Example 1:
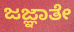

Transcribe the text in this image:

ಜಜ್ಞಾತೇ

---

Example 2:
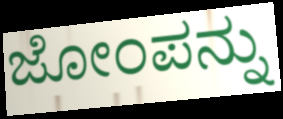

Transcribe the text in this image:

ಜೋಂಪನ್ನು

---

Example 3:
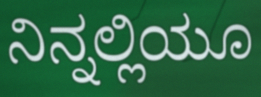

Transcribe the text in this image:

ನಿನ್ನಲ್ಲಿಯೂ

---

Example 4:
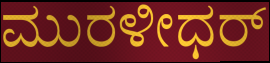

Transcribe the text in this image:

ಮುರಳೀಧರ್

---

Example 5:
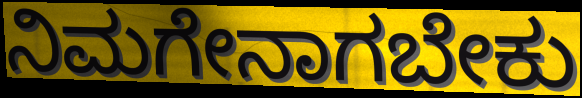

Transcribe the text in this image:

ನಿಮಗೇನಾಗಬೇಕು